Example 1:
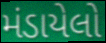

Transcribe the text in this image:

મંડાયેલો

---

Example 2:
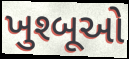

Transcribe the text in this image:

ખુશ્બૂઓ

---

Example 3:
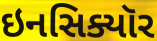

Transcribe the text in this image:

ઇનસિક્યૉર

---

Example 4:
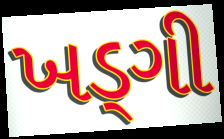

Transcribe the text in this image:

ખડ્ગી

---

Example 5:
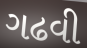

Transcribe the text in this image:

ગઢવી